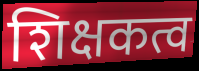
शिक्षकत्व